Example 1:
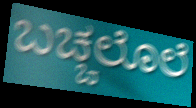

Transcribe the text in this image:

ಬಚ್ಚಲೊಲೆ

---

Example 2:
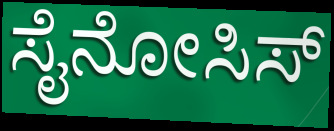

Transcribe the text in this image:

ಸೈನೋಸಿಸ್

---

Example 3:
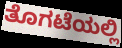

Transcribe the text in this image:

ತೊಗಟೆಯಲ್ಲಿ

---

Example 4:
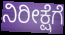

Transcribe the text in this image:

ನಿರೀಕ್ಷೆಗೆ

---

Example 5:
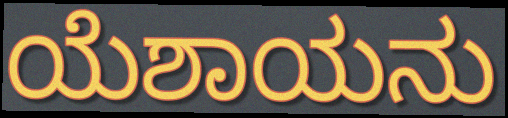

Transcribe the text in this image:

ಯೆಶಾಯನು